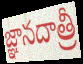
జ్ఞానదాత్రీ